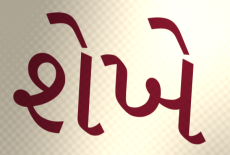
શેખે